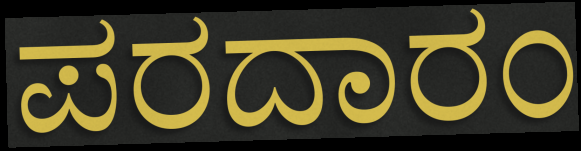
ಪರದಾರಂ